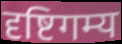
दृष्टिगम्य